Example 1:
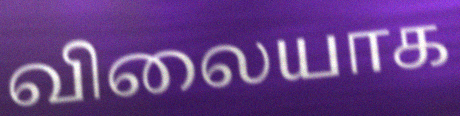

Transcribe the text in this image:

விலையாக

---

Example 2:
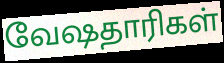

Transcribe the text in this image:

வேஷதாரிகள்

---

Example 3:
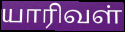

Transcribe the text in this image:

யாரிவள்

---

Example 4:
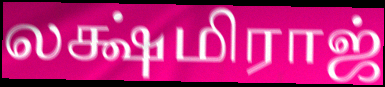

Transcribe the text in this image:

லக்ஷ்மிராஜ்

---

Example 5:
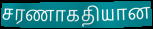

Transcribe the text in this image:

சரணாகதியான